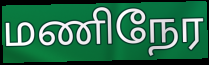
மணிநேர